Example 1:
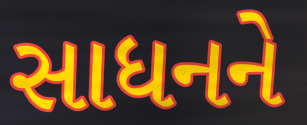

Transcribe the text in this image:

સાધનને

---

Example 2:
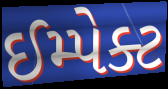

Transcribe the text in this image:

ઈમ્પેક્ટ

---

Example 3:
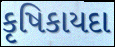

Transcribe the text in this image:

કૃષિકાયદા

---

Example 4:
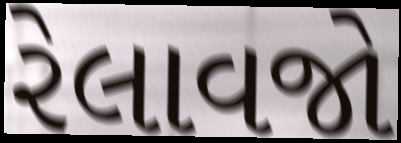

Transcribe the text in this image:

રેલાવજો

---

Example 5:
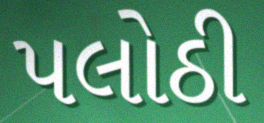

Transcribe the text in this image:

પલોઠી